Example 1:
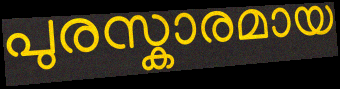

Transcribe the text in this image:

പുരസ്കാരമായ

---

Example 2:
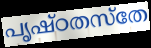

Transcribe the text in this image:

പൃഷ്ഠതസ്തേ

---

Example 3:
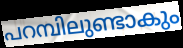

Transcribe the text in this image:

പറമ്പിലുണ്ടാകും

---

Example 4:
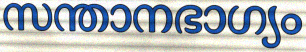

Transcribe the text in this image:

സന്താനഭാഗ്യം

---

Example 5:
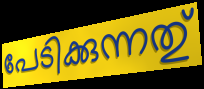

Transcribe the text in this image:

പേടിക്കുന്നതു്